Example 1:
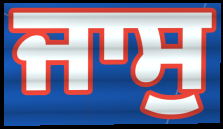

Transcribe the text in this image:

ਜਾਸੁ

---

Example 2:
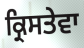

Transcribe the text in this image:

ਕ੍ਰਿਸਤੇਵਾ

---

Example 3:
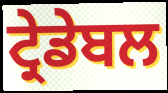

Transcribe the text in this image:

ਟ੍ਰੇਡੇਬਲ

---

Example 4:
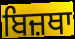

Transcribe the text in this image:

ਬਿਜ਼ਥਾ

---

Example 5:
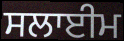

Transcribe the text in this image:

ਸਲਾਈਮ